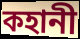
কহানী